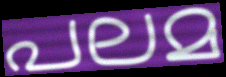
പലമ